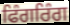
ਫਿੰਗਰਿੰਗ